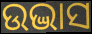
ଉଦ୍ଭାସ